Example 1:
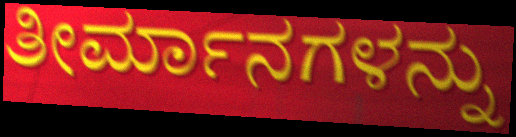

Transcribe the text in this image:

ತೀರ್ಮಾನಗಳನ್ನು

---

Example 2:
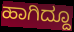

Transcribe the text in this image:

ಹಾಗಿದ್ದೂ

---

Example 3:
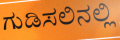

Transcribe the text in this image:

ಗುಡಿಸಲಿನಲ್ಲಿ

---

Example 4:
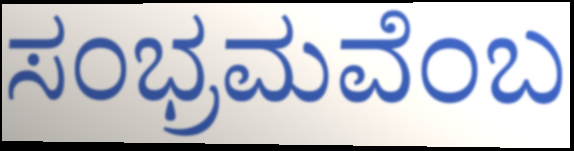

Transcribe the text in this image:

ಸಂಭ್ರಮವೆಂಬ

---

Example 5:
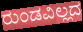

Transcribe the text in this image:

ರುಂಡವಿಲ್ಲದ